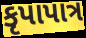
કૃપાપાત્ર